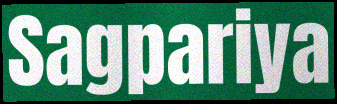
Sagpariya